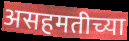
असहमतीच्या